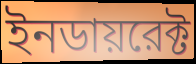
ইনডায়রেক্ট